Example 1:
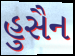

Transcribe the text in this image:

હુસૈન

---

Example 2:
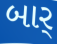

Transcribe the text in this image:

બાર્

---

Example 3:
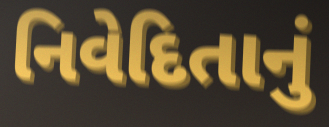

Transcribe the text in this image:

નિવેદિતાનું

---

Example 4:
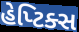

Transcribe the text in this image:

હેપ્ટિક્સ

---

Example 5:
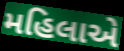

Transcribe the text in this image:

મહિલાએ